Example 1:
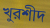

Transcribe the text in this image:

খুরশীদ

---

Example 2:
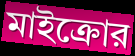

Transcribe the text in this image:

মাইক্রোর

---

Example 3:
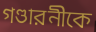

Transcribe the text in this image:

গণ্ডারনীকে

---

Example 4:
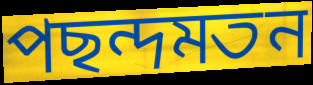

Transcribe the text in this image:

পছন্দমতন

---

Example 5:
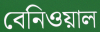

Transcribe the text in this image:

বেনিওয়াল